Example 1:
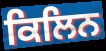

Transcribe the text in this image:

ਕਿਲਿਨ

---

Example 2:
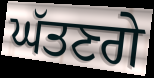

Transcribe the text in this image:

ਘੱਤਣਗੇ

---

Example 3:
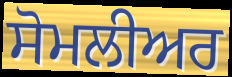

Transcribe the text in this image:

ਸੋਮਲੀਅਰ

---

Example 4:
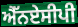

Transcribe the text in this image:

ਐੱਨਏਸੀਪੀ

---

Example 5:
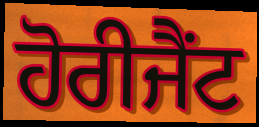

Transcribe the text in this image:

ਹੋਰੀਜੈਂਟ